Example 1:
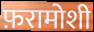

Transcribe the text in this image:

फ़रामोशी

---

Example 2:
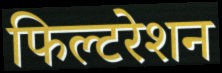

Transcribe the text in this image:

फिल्टरेशन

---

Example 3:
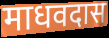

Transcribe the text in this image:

माधवदास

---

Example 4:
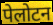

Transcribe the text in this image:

पेलोटन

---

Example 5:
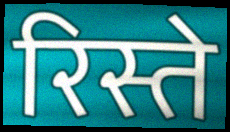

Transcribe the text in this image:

रिस्ते